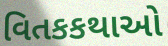
વિતકકથાઓ